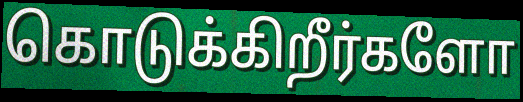
கொடுக்கிறீர்களோ